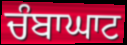
ਚੰਬਾਘਾਟ